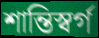
শান্তিস্বর্গ